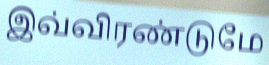
இவ்விரண்டுமே